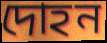
দোহন